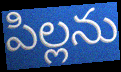
పిల్లను